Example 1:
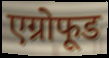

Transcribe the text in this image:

एग्रोफूड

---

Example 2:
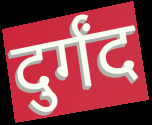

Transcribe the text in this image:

दुर्गंद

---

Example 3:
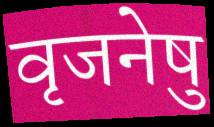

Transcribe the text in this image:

वृजनेषु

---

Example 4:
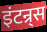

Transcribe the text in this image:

इंटन्र्स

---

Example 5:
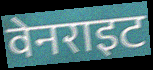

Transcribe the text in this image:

वेनराइट